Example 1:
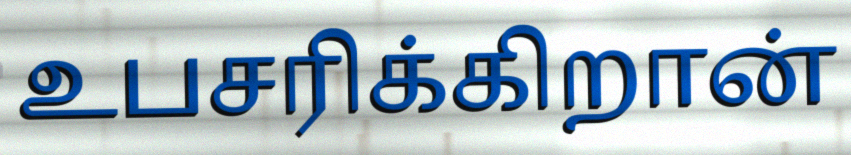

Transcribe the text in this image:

உபசரிக்கிறான்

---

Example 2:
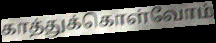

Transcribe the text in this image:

காத்துக்கொள்வோம்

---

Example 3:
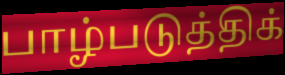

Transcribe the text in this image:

பாழ்படுத்திக்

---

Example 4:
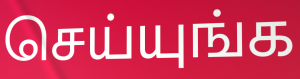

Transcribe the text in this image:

செய்யுங்க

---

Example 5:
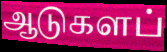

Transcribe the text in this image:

ஆடுகளப்